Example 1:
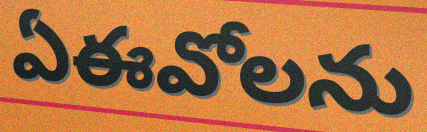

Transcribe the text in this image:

ఏఈవోలను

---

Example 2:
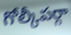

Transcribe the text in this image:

గోల్కీపర్గా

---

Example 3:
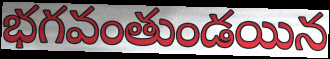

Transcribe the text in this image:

భగవంతుండయిన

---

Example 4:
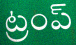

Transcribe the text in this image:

ట్రంప్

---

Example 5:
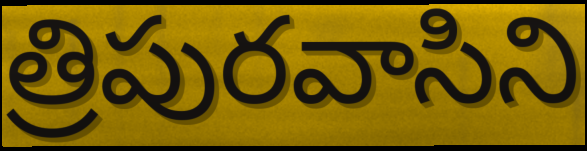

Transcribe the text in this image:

త్రిపురవాసిని